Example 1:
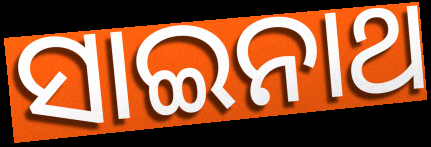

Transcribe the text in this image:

ସାଇନାଥ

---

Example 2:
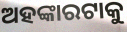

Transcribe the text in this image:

ଅହଙ୍କାରଟାକୁ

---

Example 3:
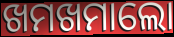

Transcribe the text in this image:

ଖମଖମାଲୋ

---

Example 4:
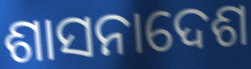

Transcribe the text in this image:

ଶାସନାଦେଶ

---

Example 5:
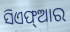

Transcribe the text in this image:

ସିଏଫ୍ଆର